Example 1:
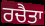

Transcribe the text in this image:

ਰਚੈਤਾ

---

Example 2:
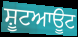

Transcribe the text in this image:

ਸ਼ੂਟਆਊਟ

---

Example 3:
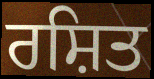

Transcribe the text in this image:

ਰਸ਼ਿਤ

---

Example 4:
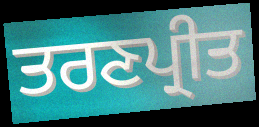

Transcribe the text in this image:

ਤਰਣਪ੍ਰੀਤ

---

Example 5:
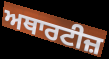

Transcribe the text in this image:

ਅਥਾਰਟੀਜ਼